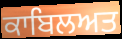
ਕਾਬਿਲਅਤ